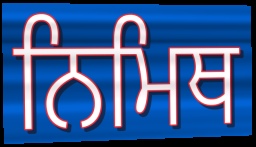
ਨਿਮਿਥ